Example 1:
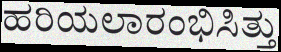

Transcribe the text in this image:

ಹರಿಯಲಾರಂಭಿಸಿತ್ತು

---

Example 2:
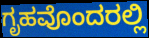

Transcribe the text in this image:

ಗೃಹವೊಂದರಲ್ಲಿ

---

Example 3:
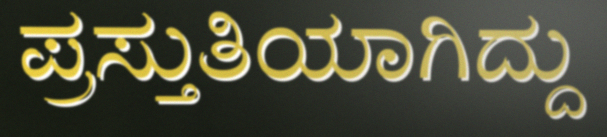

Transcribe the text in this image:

ಪ್ರಸ್ತುತಿಯಾಗಿದ್ದು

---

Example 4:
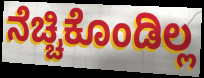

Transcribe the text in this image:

ನೆಚ್ಚಿಕೊಂಡಿಲ್ಲ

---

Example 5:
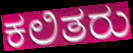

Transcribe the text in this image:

ಕಲಿತರು